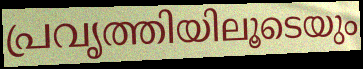
പ്രവൃത്തിയിലൂടെയും